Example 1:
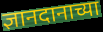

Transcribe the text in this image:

ज्ञानदानाच्या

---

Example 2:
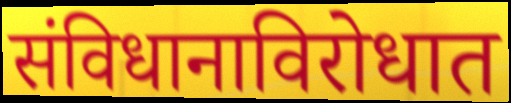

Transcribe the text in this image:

संविधानाविरोधात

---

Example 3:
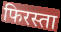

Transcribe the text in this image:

फिरस्ता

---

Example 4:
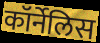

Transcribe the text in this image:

कॉर्नेलिस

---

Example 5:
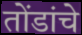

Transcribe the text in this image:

तोंडांचे